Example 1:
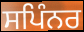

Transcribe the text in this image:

ਸਪਿੰਨਰ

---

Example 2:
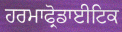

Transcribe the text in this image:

ਹਰਮਾਫ੍ਰੋਡਾਈਟਿਕ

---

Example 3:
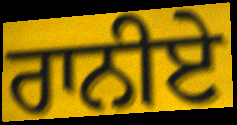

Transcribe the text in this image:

ਰਾਨੀਏ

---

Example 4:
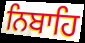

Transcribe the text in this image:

ਨਿਬਾਹਿ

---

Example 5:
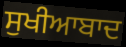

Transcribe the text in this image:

ਸੁਖੀਆਬਾਦ